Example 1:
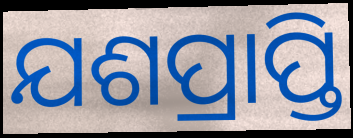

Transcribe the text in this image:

ଯଶପ୍ରାପ୍ତି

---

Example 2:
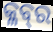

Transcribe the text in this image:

କ୍ଳବ୍‍ର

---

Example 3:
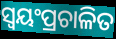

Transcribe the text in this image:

ସ୍ୱୟଂପ୍ରଚାଳିତ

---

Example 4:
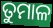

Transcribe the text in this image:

ତୁମାଳ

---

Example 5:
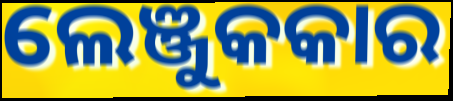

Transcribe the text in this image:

ଲେଞ୍ଜୁକକାର